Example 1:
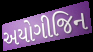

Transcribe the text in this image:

અયોગીજિન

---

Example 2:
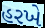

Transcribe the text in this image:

હરખે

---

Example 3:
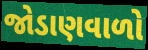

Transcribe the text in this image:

જોડાણવાળો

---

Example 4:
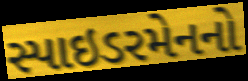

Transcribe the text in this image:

સ્પાઇડરમેનનો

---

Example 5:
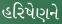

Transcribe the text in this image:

હરિષેણને